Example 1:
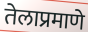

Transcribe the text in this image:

तेलाप्रमाणे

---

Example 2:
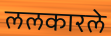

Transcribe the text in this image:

ललकारले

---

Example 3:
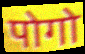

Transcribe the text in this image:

पोगो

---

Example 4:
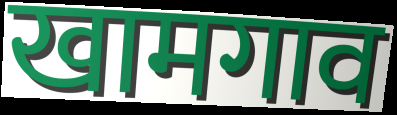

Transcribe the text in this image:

खामगाव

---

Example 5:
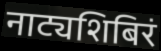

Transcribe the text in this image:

नाट्यशिबिरं